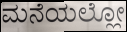
ಮನೆಯಲ್ಲೋ